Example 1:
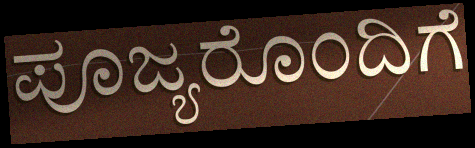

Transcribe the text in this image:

ಪೂಜ್ಯರೊಂದಿಗೆ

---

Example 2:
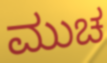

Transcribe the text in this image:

ಮುಚ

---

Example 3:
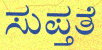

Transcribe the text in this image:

ಸುಪ್ತತೆ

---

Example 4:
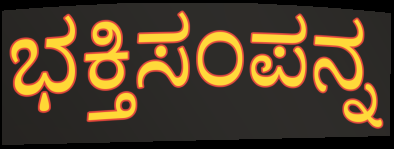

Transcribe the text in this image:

ಭಕ್ತಿಸಂಪನ್ನ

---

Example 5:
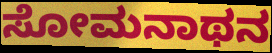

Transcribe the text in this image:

ಸೋಮನಾಥನ